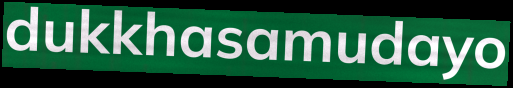
dukkhasamudayo